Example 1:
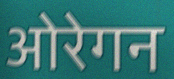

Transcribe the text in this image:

ओरेगन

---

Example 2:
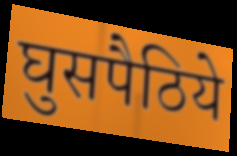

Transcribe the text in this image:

घुसपैठिये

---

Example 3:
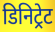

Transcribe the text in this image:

डिनिट्रेट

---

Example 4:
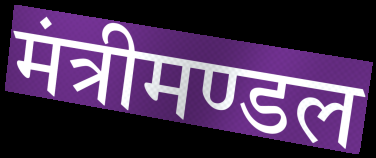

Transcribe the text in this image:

मंत्रीमण्डल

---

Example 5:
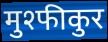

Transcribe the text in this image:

मुश्फीकुर